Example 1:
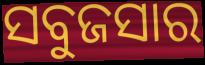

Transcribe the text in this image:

ସବୁଜସାର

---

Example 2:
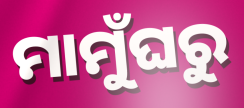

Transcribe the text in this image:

ମାମୁଁଘରୁ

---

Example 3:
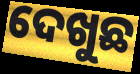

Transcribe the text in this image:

ଦେଖୁଛ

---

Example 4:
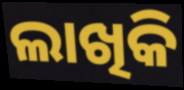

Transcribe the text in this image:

ଲାଖିକି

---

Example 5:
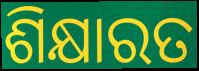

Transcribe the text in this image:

ଶିକ୍ଷାରତ